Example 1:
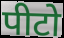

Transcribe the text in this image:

पीटो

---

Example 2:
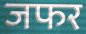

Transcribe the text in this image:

जफर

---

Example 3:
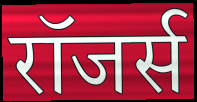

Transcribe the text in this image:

रॉजर्स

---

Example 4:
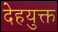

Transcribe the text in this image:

देहयुक्त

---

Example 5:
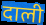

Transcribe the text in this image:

दाली